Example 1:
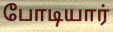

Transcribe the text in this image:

போடியார்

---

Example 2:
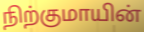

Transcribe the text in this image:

நிற்குமாயின்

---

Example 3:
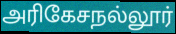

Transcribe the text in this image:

அரிகேசநல்லூர்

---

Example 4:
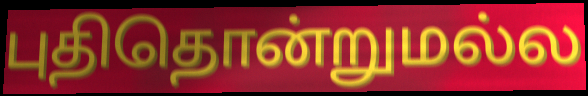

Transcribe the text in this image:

புதிதொன்றுமல்ல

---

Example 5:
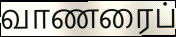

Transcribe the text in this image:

வாணரைப்